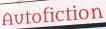
Autofiction